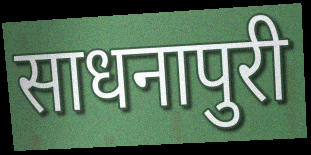
साधनापुरी